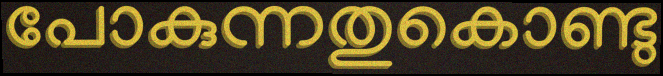
പോകുന്നതുകൊണ്ടു